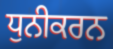
ਧੁਨੀਕਰਨ